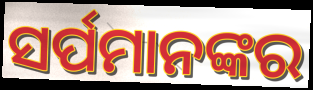
ସର୍ପମାନଙ୍କର